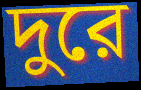
দুরে